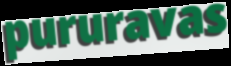
pururavas